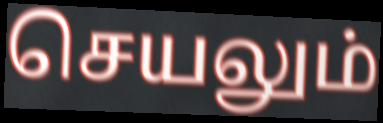
செயலும்